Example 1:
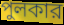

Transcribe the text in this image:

পুলকার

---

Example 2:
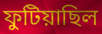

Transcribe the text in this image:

ফুটিয়াছিল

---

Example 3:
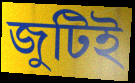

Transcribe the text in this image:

জুটিই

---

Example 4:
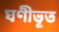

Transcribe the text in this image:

ঘণীভূত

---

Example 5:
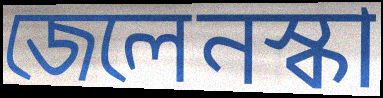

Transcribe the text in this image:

জেলেনস্কা